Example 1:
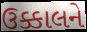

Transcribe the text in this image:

ઉક્કાલને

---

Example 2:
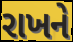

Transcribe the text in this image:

રાખને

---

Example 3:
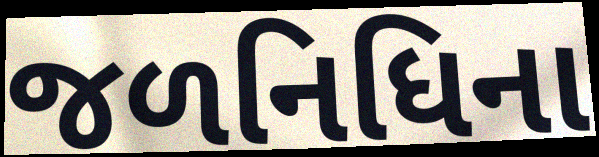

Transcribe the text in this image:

જળનિધિના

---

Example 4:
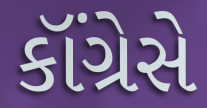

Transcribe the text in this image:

કૉંગ્રેસે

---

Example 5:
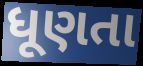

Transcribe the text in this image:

ધૂણતા